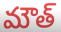
మౌత్